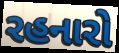
રહનારો